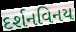
દર્શનવિનય